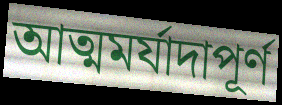
আত্মমর্যাদাপূর্ণ